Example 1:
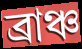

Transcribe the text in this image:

ব্রাঞ্চ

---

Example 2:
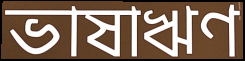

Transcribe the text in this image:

ভাষাঋণ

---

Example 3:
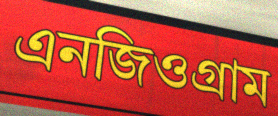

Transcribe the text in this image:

এনজিওগ্রাম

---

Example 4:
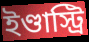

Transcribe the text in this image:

ইণ্ডাস্ট্রি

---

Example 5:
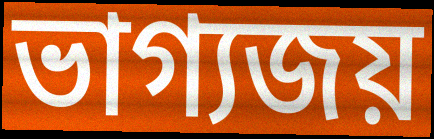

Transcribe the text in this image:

ভাগ্যজয়